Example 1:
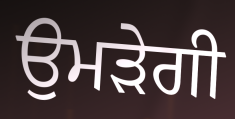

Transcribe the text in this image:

ਉਮੜੇਗੀ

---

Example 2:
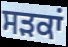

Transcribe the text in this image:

ਸੜਕਾਂ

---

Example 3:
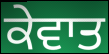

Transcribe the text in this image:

ਕੇਵਾਤ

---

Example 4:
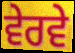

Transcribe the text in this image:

ਵੇਰਵੇ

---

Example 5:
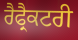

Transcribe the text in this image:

ਰੈਫ੍ਰੈਕਟਰੀ